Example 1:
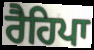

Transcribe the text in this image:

ਰੈਹਿਪਾ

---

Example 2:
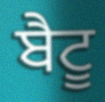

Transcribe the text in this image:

ਬੈਟੂ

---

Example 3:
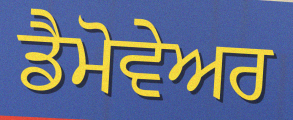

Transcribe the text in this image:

ਡੈਮੋਵੇਅਰ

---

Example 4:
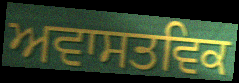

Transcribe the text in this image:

ਅਵਾਸਤਵਿਕ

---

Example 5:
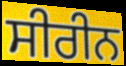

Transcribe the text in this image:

ਸੀਰੀਨ